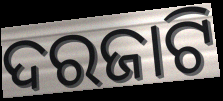
ଦରଜାଟି